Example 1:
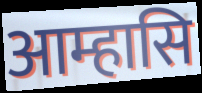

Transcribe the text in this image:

आम्हासि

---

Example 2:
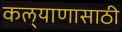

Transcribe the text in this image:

कल्याणासाठी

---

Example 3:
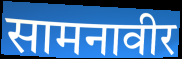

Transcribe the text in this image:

सामनावीर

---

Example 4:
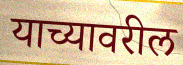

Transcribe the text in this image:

याच्यावरील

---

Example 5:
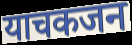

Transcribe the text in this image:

याचकजन